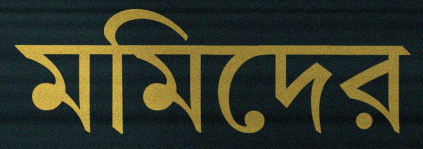
মমিদের